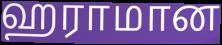
ஹராமான